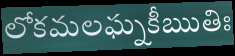
లోకమలఘ్నకీఋతిః